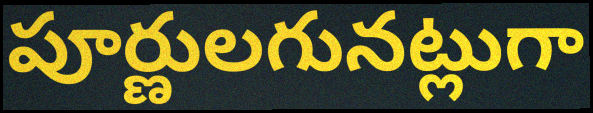
పూర్ణులగునట్లుగా